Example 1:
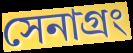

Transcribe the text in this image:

সেনাগ্রং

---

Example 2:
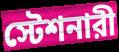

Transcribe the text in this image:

স্টেশনারী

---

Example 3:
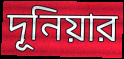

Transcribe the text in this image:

দূনিয়ার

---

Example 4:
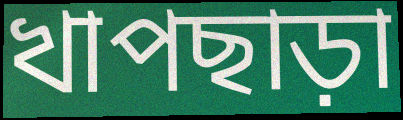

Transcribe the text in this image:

খাপছাড়া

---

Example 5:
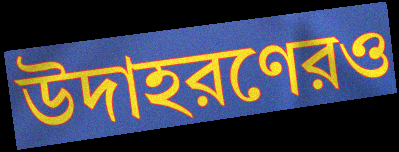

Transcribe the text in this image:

উদাহরণেরও